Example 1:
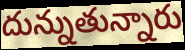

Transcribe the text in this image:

దున్నుతున్నారు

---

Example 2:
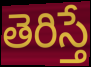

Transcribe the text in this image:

తెరిస్తే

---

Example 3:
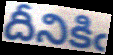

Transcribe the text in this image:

దీనికిఁ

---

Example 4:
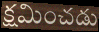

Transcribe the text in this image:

క్షమించడు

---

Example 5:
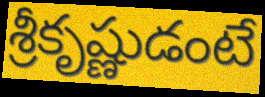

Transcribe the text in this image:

శ్రీకృష్ణుడంటే